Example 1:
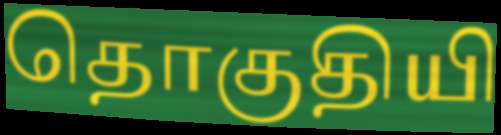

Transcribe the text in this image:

தொகுதியி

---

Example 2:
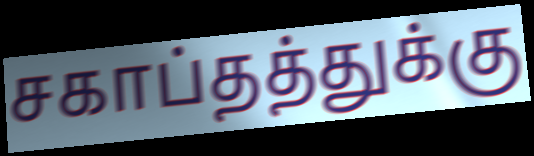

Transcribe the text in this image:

சகாப்தத்துக்கு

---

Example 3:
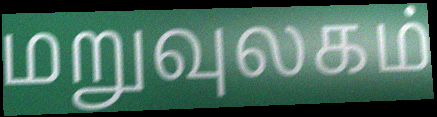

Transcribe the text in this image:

மறுவுலகம்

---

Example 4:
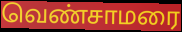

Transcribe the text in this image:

வெண்சாமரை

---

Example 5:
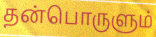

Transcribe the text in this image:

தன்பொருளும்